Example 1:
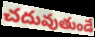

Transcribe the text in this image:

చదువుతుండే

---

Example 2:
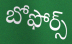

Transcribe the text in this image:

బోఫోర్స్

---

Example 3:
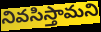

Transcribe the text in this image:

నివసిస్తామని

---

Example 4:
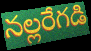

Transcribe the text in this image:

నల్లరేగడి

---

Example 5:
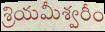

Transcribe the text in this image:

శ్రియమీశ్వరీం